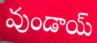
వుండాయ్